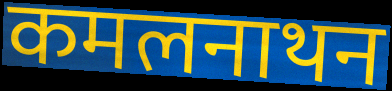
कमलनाथन